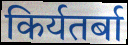
किर्यतर्बा